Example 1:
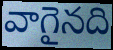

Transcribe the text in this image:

వాగైనది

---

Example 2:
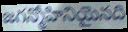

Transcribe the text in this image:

జగన్మోహినియైనది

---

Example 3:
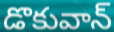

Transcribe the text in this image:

డొకువాన్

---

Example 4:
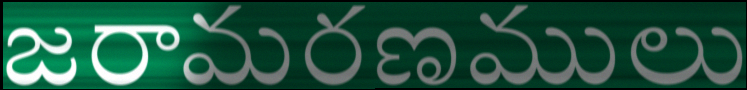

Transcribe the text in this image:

జరామరణములు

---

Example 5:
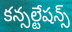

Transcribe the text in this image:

కన్సల్టేషన్స్